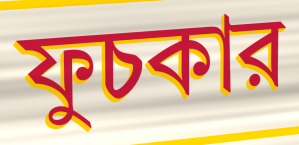
ফুচকার